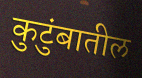
कुटुंबातील